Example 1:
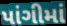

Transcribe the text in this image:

પાંગીમાં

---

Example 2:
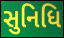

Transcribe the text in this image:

સુનિધિ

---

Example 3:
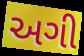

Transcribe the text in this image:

અગી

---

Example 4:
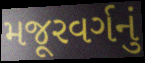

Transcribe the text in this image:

મજૂરવર્ગનું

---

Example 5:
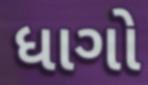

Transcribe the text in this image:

ધાગો